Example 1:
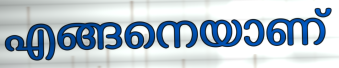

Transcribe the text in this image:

എങ്ങനെയാണ്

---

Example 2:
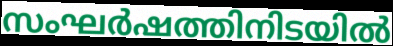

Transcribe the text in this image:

സംഘർഷത്തിനിടയിൽ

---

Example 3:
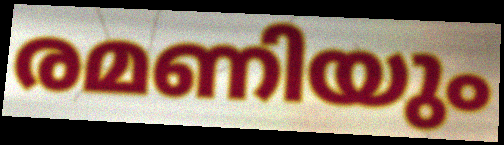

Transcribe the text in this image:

രമണിയും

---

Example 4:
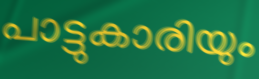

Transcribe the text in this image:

പാട്ടുകാരിയും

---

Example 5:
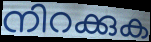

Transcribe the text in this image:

നിറക്കുക